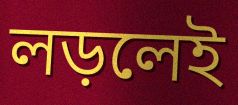
লড়লেই